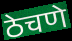
ठेचणे